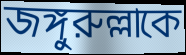
জঙ্গুরুল্লাকে